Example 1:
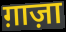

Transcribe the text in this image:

ग़ाज़ा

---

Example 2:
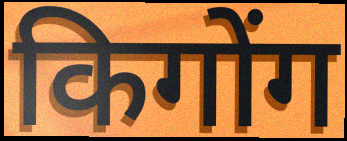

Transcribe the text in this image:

किगोंग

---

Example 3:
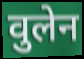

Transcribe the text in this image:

वुलेन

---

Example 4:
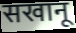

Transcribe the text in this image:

सखानू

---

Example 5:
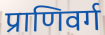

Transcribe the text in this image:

प्राणिवर्ग